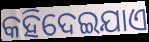
କହିଦେଇଯାଏ